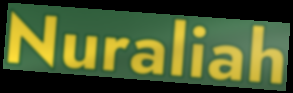
Nuraliah